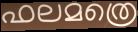
ഫലമത്രെ